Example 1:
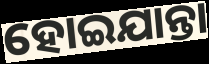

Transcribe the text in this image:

ହୋଇଯାନ୍ତା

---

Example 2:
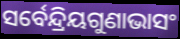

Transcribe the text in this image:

ସର୍ବେନ୍ଦ୍ରିୟଗୁଣାଭାସଂ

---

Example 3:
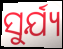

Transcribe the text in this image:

ସୁର୍ଯ୍ୟ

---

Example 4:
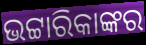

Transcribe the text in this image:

ଭଟ୍ଟାରିକାଙ୍କର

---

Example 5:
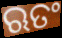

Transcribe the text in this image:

ଋତଂ